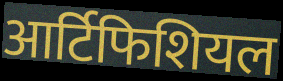
आर्टिफिशियल